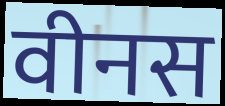
वीनस